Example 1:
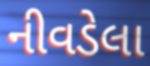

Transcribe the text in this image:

નીવડેલા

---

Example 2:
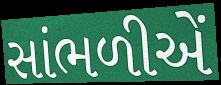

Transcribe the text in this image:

સાંભળીએં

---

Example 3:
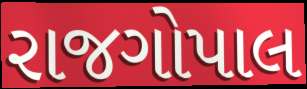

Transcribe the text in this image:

રાજગોપાલ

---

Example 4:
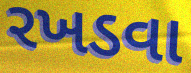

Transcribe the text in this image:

રખડવા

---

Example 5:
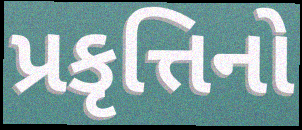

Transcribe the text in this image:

પ્રકૃત્તિનો